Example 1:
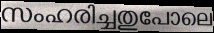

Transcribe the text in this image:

സംഹരിച്ചതുപോലെ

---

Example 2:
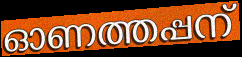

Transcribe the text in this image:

ഓണത്തപ്പന്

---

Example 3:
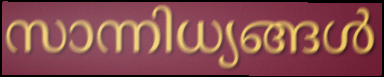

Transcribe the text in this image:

സാന്നിധ്യങ്ങൾ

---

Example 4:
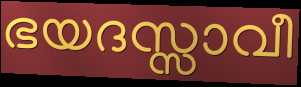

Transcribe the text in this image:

ഭയദസ്സാവീ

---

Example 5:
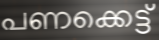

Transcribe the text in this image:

പണക്കെട്ട്